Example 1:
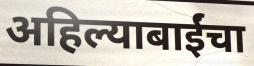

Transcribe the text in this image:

अहिल्याबाईंचा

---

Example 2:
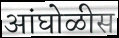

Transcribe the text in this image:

आंघोळीस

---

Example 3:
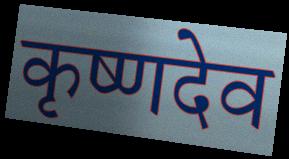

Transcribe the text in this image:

कृष्णदेव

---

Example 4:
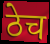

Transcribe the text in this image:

ठेच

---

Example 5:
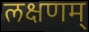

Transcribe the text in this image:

लक्षणम्